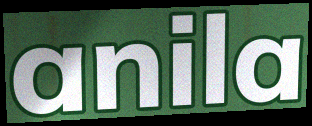
anila